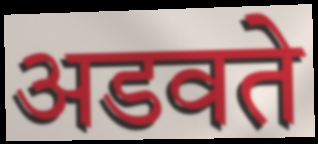
अडवते